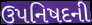
ઉપનિષદની